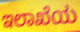
ಇಲಾಖೆಯ